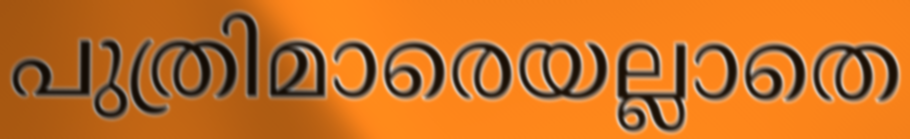
പുത്രിമാരെയല്ലാതെ